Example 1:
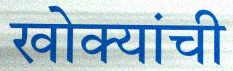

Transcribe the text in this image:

खोक्यांची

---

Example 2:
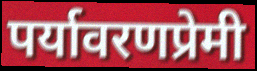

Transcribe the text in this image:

पर्यावरणप्रेमी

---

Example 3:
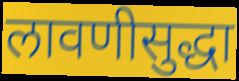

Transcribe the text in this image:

लावणीसुद्धा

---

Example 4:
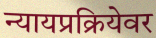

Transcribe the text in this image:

न्यायप्रक्रियेवर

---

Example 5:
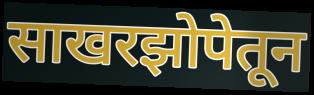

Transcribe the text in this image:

साखरझोपेतून